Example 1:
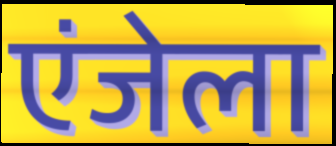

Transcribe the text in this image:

एंजेला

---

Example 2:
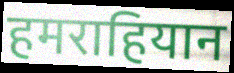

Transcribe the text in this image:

हमराहियान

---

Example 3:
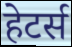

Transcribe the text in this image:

हेटर्स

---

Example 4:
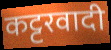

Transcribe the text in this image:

कट्टरवादी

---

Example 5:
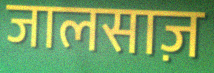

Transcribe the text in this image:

जालसाज़